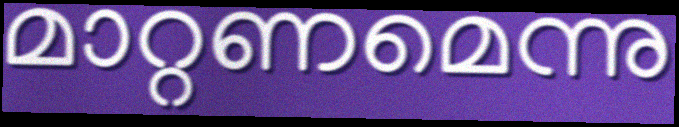
മാറ്റണമെന്നു